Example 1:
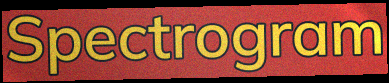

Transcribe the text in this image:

Spectrogram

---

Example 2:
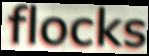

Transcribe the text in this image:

flocks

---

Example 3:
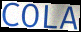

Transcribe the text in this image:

COLA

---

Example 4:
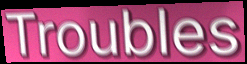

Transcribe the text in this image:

Troubles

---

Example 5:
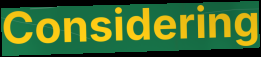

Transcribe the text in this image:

Considering